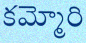
కమ్మోరి